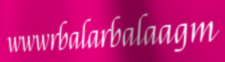
wwwrbalarbalaagm